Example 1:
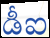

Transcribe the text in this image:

డీఐ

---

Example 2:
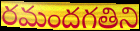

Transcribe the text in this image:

రమందగతిని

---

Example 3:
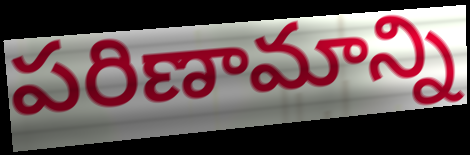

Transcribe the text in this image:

పరిణామాన్ని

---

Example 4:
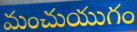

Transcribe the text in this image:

మంచుయుగం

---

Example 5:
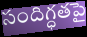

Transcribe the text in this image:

సందిగ్ధతపై